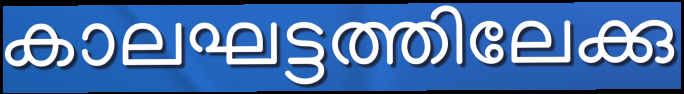
കാലഘട്ടത്തിലേക്കു